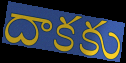
దాకకు